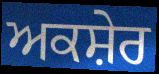
ਅਕਸ਼ੇਰ